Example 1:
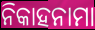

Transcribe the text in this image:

ନିକାହନାମା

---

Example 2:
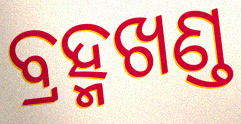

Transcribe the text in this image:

ବ୍ରହ୍ମଖଣ୍ଡ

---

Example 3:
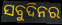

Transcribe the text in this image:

ସବୁଦିନର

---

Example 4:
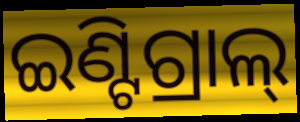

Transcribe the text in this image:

ଇଣ୍ଟିଗ୍ରାଲ୍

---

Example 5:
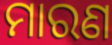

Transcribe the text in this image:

ମାରଣ